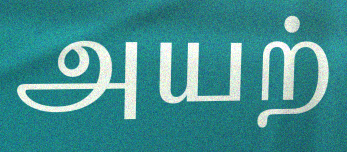
அயற்